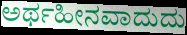
ಅರ್ಥಹೀನವಾದುದು